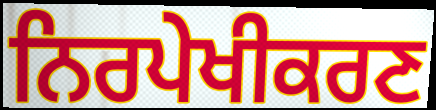
ਨਿਰਪੇਖੀਕਰਣ